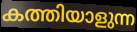
കത്തിയാളുന്ന